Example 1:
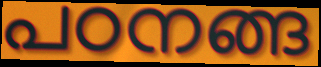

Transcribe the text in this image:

പഠനങ്ങ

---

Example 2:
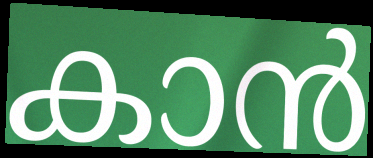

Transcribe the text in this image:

കാൻ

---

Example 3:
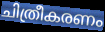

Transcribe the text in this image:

ചിത്രീകരണം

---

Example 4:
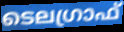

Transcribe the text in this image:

ടെലഗ്രാഫ്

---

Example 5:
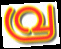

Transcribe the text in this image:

വ്ര